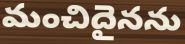
మంచిదైనను